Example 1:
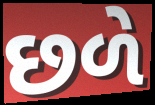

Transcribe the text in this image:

છળે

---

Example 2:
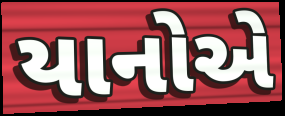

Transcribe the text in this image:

યાનોએ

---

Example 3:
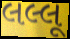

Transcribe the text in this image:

લલ્લૂ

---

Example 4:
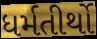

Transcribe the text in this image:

ધર્મતીર્થો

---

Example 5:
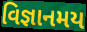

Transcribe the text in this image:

વિજ્ઞાનમય